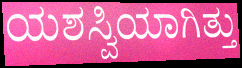
ಯಶಸ್ವಿಯಾಗಿತ್ತು